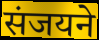
संजयने